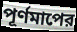
পূর্ণমাপের